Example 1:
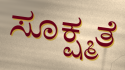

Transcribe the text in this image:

ಸೂಕ್ಷ್ಮತೆ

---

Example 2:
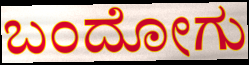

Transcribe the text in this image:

ಬಂದೋಗು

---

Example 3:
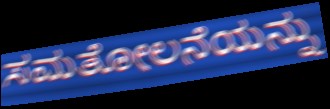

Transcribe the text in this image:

ಸಮತೋಲನೆಯನ್ನು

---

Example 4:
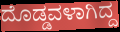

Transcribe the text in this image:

ದೊಡ್ಡವಳಾಗಿದ್ದ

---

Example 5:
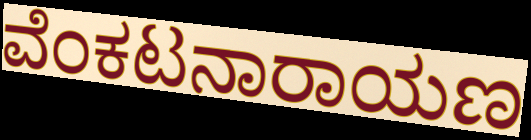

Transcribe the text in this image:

ವೆಂಕಟನಾರಾಯಣ